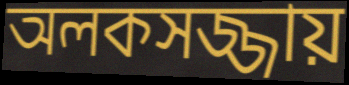
অলকসজ্জায়